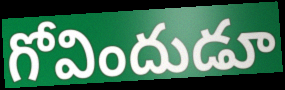
గోవిందుడూ